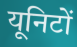
यूनिटों